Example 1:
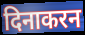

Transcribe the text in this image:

दिनाकरन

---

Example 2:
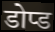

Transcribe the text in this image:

डोप्ड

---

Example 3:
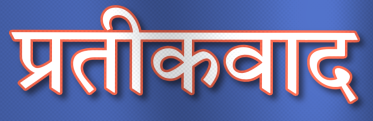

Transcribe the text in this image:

प्रतीकवाद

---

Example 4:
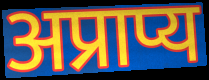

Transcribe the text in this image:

अप्राप्य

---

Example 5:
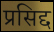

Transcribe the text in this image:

प्रसिद्द